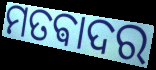
ମତଵାଦର